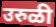
उरुळी